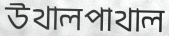
উথালপাথাল